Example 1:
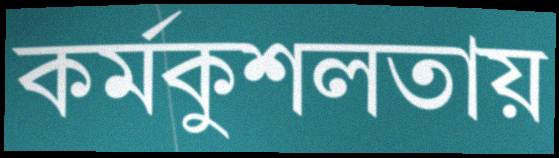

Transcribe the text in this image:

কর্মকুশলতায়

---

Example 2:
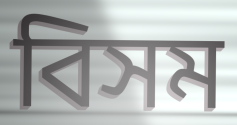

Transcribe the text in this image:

বিসম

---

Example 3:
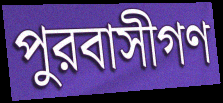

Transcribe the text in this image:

পুরবাসীগণ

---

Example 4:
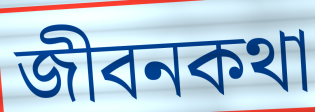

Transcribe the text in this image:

জীবনকথা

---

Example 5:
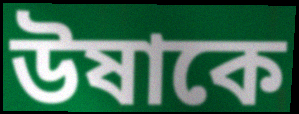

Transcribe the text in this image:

উষাকে